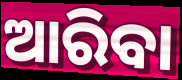
ଆରିବା